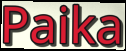
Paika